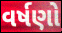
વર્ષણો